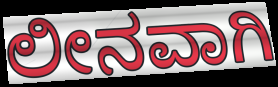
ಲೀನವಾಗಿ